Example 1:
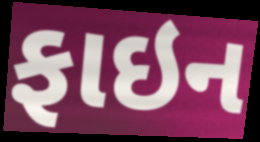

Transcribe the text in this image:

ફાઇન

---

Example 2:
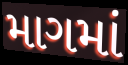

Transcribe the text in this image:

માગમાં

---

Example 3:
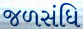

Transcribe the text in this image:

જળસંધિ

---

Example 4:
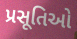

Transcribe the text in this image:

પ્રસૂતિઓ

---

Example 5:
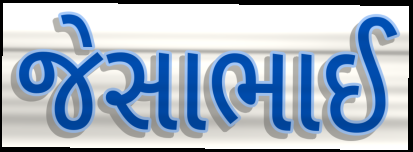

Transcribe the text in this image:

જેસાભાઈ